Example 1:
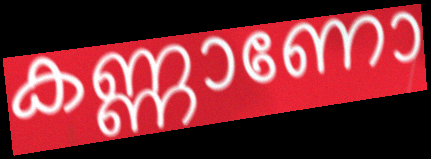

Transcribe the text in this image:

കണ്ണാണോ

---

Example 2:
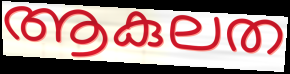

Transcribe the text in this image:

ആകുലത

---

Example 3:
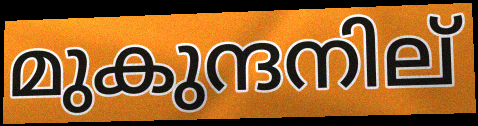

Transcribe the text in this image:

മുകുന്ദനില്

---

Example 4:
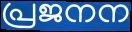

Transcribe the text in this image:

പ്രജനന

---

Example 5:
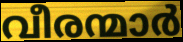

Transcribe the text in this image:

വീരന്മാർ